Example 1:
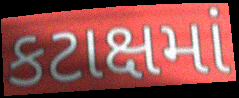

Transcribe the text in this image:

કટાક્ષમાં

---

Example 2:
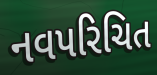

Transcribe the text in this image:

નવપરિચિત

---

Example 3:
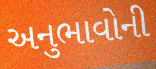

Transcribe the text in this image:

અનુભાવોની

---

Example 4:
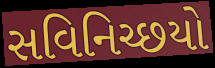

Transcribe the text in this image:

સવિનિચ્છયો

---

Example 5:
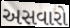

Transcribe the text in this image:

અસવારો